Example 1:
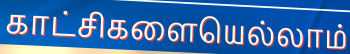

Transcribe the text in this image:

காட்சிகளையெல்லாம்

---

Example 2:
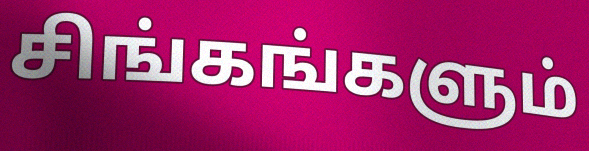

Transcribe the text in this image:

சிங்கங்களும்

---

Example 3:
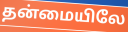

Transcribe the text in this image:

தன்மையிலே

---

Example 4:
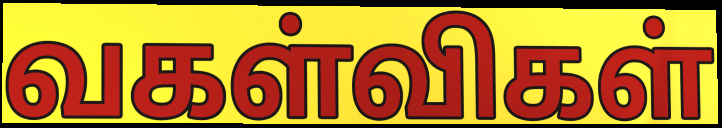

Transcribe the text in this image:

வகள்விகள்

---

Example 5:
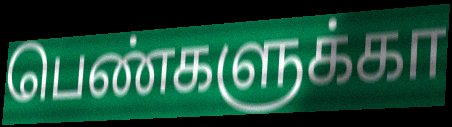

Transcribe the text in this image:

பெண்களுக்கா